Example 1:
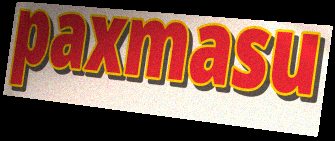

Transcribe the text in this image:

paxmasu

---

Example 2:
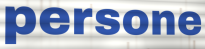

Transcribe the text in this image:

persone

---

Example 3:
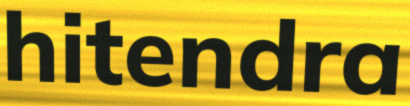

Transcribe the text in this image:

hitendra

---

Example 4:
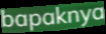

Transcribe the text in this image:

bapaknya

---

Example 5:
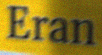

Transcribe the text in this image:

Eran